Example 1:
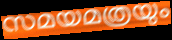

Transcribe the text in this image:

സമയമത്രയും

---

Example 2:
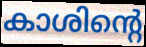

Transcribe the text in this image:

കാശിന്റെ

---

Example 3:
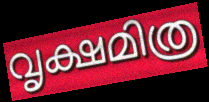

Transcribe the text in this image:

വൃക്ഷമിത്ര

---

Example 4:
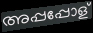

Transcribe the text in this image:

അപ്പപ്പോള്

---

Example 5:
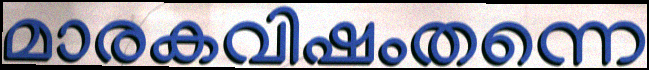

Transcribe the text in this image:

മാരകവിഷംതന്നെ